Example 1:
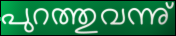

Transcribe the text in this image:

പുറത്തുവന്നു്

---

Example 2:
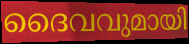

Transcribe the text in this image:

ദൈവവുമായി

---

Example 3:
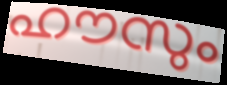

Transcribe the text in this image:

ഹൗസും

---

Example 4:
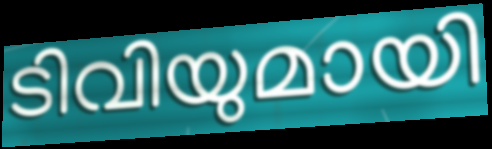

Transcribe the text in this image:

ടിവിയുമായി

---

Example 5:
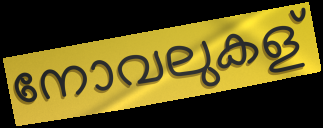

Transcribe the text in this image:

നോവലുകള്